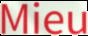
Mieu